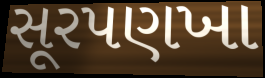
સૂરપણખા